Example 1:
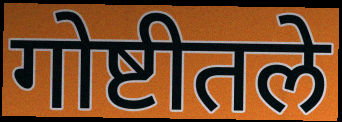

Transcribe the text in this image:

गोष्टीतले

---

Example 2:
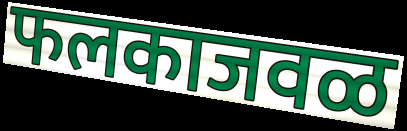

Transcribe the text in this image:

फलकाजवळ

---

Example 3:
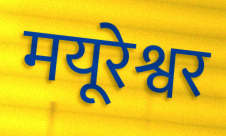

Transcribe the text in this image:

मयूरेश्वर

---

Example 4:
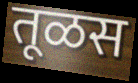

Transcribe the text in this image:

तूळस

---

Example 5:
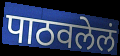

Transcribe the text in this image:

पाठवलेलं